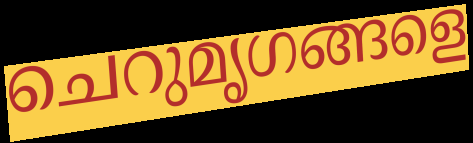
ചെറുമൃഗങ്ങളെ